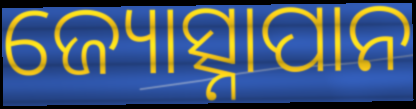
ଜ୍ୟୋତ୍ସ୍ନାପାନ